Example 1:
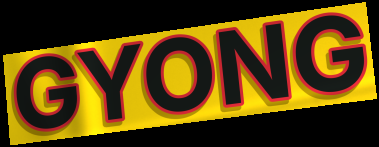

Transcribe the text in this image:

GYONG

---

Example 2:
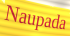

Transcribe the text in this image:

Naupada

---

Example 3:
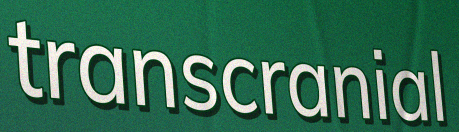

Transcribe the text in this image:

transcranial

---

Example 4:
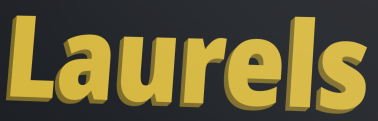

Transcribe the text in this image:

Laurels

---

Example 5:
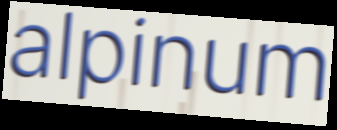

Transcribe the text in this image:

alpinum